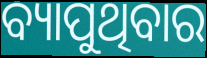
ବ୍ୟାପୁଥିବାର